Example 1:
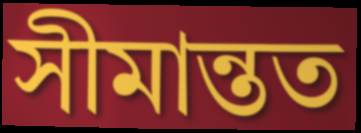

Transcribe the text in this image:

সীমান্তত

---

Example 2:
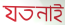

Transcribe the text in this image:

যতনাই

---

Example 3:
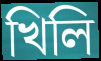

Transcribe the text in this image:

খিলি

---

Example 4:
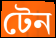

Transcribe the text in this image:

টেন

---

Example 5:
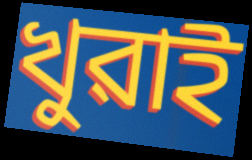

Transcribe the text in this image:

খুৱাই